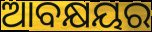
ଆବକ୍ଷୟର